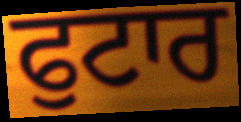
ਫੁਟਾਰ